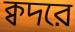
ক্বদরে